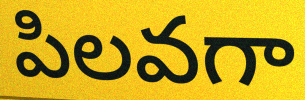
పిలవగా